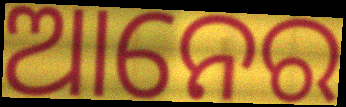
ଆନେର